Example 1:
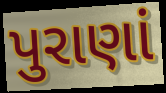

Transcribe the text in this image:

પુરાણાં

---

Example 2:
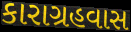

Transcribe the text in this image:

કારાગ્રહવાસ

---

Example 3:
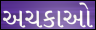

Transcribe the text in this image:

અચકાઓ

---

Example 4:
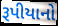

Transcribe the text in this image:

રૂપીયાનો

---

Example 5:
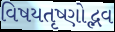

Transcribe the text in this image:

વિષયતૃષ્ણોદ્ભવ